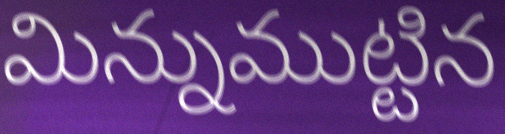
మిన్నుముట్టిన